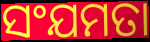
ସଂଯମତା